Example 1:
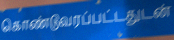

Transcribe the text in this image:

கொண்டுவரப்பட்டதுடன்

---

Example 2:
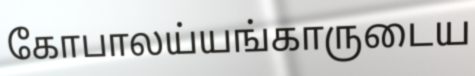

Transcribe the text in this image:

கோபாலய்யங்காருடைய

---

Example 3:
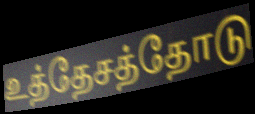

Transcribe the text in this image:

உத்தேசத்தோடு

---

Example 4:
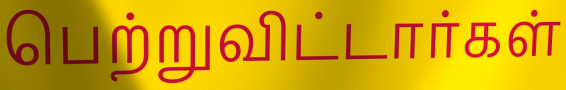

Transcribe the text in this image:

பெற்றுவிட்டார்கள்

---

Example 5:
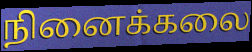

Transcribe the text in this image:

நினைக்கலை